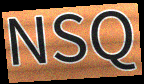
NSQ